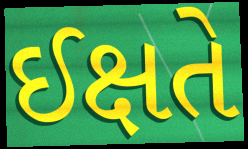
ઈક્ષતે